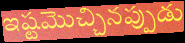
ఇష్టమొచ్చినప్పుడు